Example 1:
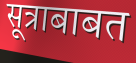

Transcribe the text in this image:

सूत्राबाबत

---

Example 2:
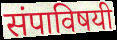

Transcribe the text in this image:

संपाविषयी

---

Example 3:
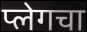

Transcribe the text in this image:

प्लेगचा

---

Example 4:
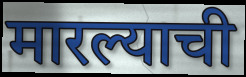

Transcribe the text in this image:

मारल्याची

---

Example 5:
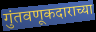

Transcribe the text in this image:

गुंतवणूकदाराच्या